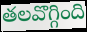
తలవొగ్గింది